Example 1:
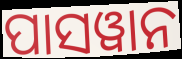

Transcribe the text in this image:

ପାସୱାନ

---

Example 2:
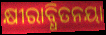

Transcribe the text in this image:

କ୍ଷୀରାବ୍ଧିତନୟା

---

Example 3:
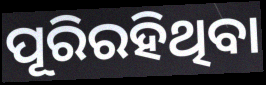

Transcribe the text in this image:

ପୂରିରହିଥିବା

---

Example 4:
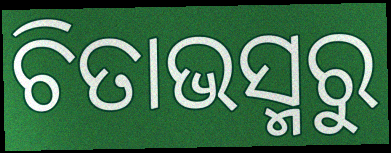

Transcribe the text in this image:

ଚିତାଭସ୍ମରୁ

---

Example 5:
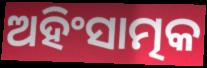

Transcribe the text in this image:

ଅହିଂସାତ୍ମକ